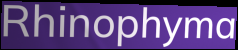
Rhinophyma